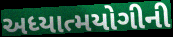
અધ્યાત્મયોગીની